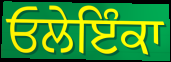
ਓਲੇਇੰਕਾ